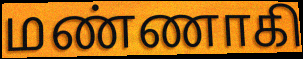
மண்ணாகி